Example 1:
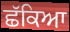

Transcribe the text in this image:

ਛੱਕਿਆ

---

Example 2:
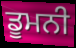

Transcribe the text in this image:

ਡੂਮਨੀ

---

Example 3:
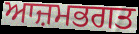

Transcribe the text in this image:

ਆਜ਼ਮਭਗਤ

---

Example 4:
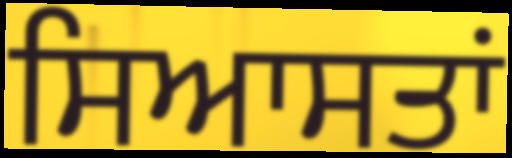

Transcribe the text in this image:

ਸਿਆਸਤਾਂ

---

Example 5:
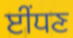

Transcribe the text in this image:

ਈਂਧਣ